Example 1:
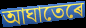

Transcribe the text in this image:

আঘাতেৰে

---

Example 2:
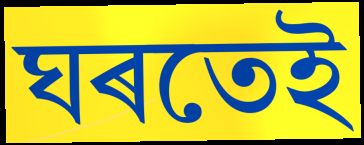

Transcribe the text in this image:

ঘৰতেই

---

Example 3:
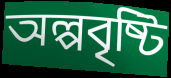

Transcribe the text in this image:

অল্পবৃষ্টি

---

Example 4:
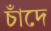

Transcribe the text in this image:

চাঁদে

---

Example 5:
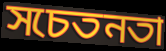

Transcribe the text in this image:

সচেতনতা